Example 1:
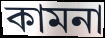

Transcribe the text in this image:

কামনা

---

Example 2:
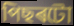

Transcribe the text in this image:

পিছৰটো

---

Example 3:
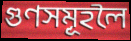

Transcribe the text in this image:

গুণসমূহলৈ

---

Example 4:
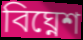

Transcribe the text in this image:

বিঘ্নেশ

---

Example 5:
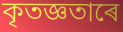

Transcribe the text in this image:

কৃতজ্ঞতাৰে